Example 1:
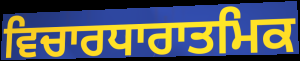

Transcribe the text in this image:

ਵਿਚਾਰਧਾਰਾਤਮਿਕ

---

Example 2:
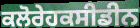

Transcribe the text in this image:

ਕਲੋਰੇਹਕਸੀਡੀਨ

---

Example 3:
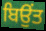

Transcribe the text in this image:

ਬਿਉਂਤ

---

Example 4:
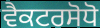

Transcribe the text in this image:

ਵੈਕਟਰਸੋਧੋ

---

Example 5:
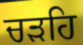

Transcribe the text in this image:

ਚੜਹਿ